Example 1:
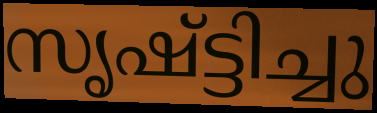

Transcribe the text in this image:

സൃഷ്ട്ടിച്ചു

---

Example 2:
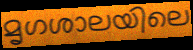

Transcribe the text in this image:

മൃഗശാലയിലെ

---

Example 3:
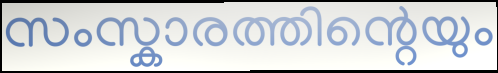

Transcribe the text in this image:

സംസ്കാരത്തിന്റെയും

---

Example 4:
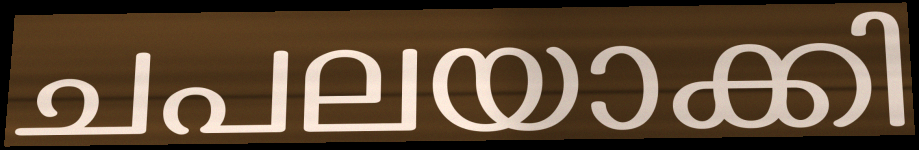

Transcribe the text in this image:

ചപലയാക്കി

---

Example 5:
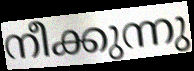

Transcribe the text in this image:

നീക്കുന്നു